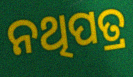
ନଥିପତ୍ର